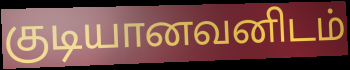
குடியானவனிடம்